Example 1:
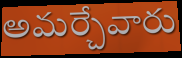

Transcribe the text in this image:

అమర్చేవారు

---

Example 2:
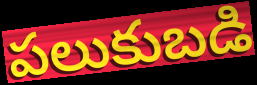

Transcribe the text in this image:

పలుకుబడి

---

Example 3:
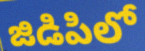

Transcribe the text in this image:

జిడిపిలో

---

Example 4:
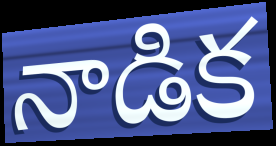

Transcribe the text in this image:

నాడిక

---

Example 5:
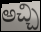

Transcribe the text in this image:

అచ్చి